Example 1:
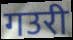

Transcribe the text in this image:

गउरी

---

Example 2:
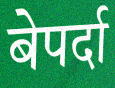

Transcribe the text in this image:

बेपर्दा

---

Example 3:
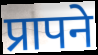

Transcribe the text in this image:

प्रापने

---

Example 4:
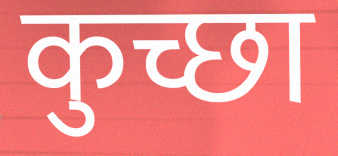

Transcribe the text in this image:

कुच्छा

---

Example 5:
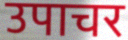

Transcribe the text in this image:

उपाचर